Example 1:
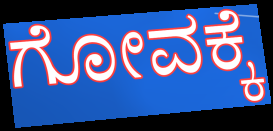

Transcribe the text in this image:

ಗೋವಕ್ಕೆ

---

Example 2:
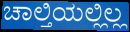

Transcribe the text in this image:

ಚಾಲ್ತಿಯಲ್ಲಿಲ್ಲ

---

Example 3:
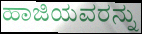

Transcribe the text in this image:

ಹಾಜಿಯವರನ್ನು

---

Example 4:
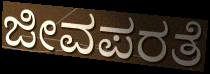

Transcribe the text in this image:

ಜೀವಪರತೆ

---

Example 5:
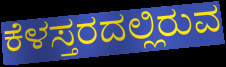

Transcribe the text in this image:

ಕೆಳಸ್ತರದಲ್ಲಿರುವ